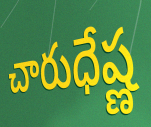
చారుధేష్ణ